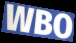
WBO